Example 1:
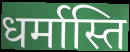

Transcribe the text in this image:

धर्मास्ति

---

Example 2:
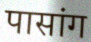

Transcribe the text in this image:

पासांग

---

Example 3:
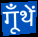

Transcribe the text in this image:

गूँथें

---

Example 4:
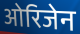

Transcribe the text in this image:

ओरिजेन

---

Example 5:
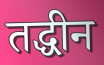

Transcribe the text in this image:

तद्धीन